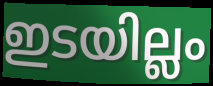
ഇടയില്ലം